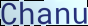
Chanu